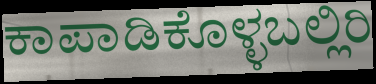
ಕಾಪಾಡಿಕೊಳ್ಳಬಲ್ಲಿರಿ